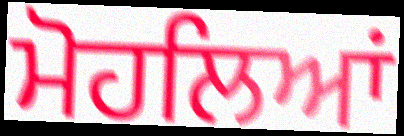
ਮੋਹਲਿਆਂ